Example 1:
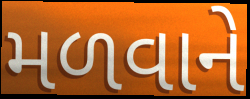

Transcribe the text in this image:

મળવાને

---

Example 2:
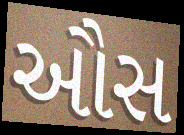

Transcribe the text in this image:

ઔસ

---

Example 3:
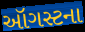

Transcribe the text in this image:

ઑગસ્ટના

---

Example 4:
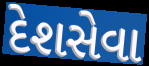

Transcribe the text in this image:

દેશસેવા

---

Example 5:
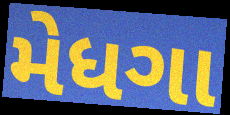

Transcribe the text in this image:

મેધગા